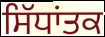
ਸਿੱਧਾਂਤਕ